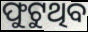
ଫୁଟୁଥିବ